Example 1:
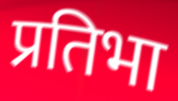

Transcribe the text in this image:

प्रतिभा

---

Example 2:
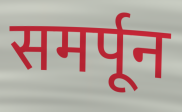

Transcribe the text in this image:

समर्पून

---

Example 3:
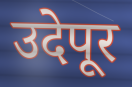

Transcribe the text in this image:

उदेपूर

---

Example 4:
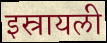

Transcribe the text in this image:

इस्रायली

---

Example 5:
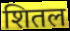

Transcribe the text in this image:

शितल